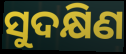
ସୁଦକ୍ଷିଣ